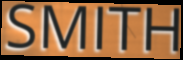
SMITH